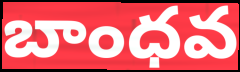
బాంధవ